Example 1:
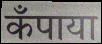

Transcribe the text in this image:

कँपाया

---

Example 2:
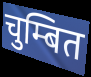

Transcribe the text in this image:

चुम्बित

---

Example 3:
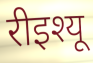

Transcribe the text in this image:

रीइश्यू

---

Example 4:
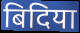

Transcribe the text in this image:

बिदिया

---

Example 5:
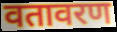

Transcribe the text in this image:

वतावरण